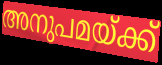
അനുപമയ്ക്ക്